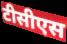
टीसीएस